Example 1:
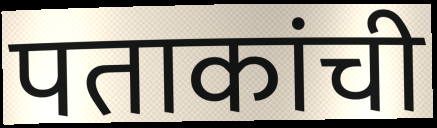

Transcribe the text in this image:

पताकांची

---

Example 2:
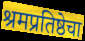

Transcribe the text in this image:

श्रमप्रतिष्ठेचा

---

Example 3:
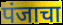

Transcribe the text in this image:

पंजाचा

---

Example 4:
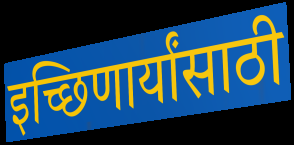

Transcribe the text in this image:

इच्छिणार्यांसाठी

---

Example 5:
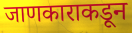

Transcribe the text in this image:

जाणकाराकडून